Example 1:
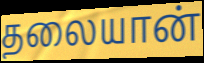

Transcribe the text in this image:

தலையான்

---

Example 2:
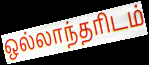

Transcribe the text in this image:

ஒல்லாந்தரிடம்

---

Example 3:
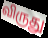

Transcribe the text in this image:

விருது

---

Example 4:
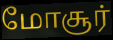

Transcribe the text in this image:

மோசூர்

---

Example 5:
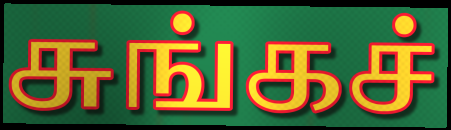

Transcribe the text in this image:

சுங்கச்